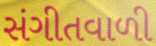
સંગીતવાળી